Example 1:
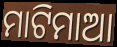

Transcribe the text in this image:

ମାଟିମାଆ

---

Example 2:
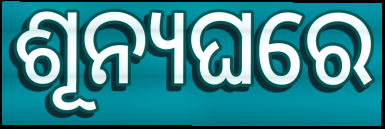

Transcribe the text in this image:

ଶୂନ୍ୟଘରେ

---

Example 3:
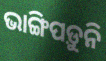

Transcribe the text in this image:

ଭାଙ୍ଗିପଡ଼ୁନି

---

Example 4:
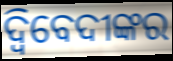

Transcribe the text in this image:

ଦ୍ଵିବେଦୀଙ୍କର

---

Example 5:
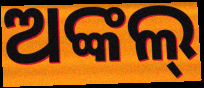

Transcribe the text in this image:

ଅଙ୍କଲ୍